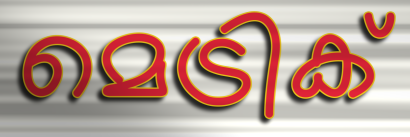
മെട്രിക്